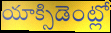
యాక్సిడెంట్లో